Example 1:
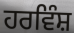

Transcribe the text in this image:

ਹਰਵਿੰਸ਼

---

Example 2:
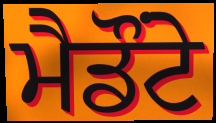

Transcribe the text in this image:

ਮੈਡੌਂਟੇ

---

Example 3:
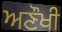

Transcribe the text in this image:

ਅਣੌਖੀ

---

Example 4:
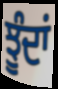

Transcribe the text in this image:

ਝੂੰਦਾਂ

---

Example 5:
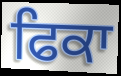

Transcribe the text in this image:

ਫਿਕਾ